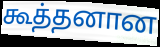
கூத்தனான